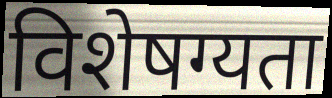
विशेषग्यता